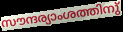
സൗന്ദര്യാംശത്തിനു്